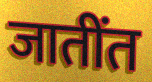
जातींत